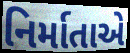
નિર્માતાએ